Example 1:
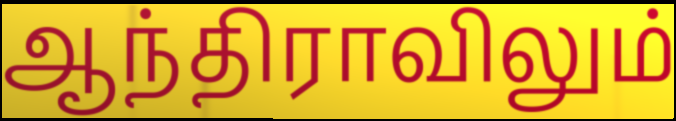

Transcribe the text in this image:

ஆந்திராவிலும்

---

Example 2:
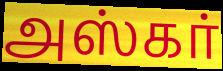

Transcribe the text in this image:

அஸ்கர்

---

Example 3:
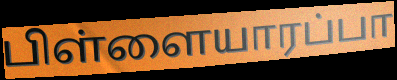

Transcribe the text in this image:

பிள்ளையாரப்பா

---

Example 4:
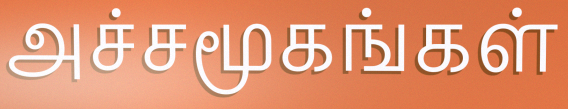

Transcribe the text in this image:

அச்சமூகங்கள்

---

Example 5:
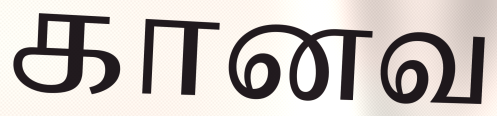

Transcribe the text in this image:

கானவ